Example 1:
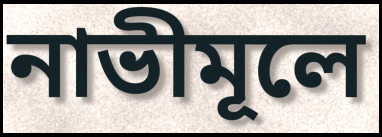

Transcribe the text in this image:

নাভীমূলে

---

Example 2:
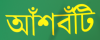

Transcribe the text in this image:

আঁশবঁটি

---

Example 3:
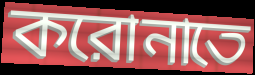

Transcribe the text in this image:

করোনাতে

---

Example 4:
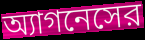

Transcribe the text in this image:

অ্যাগনেসের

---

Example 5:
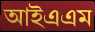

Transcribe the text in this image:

আইএএম